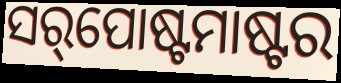
ସର୍‌ପୋଷ୍ଟମାଷ୍ଟର